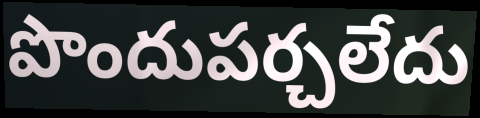
పొందుపర్చలేదు